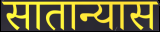
सातान्यास